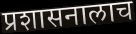
प्रशासनालाच